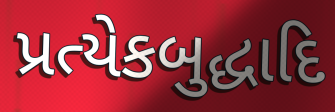
પ્રત્યેકબુદ્ધાદિ